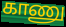
காணு